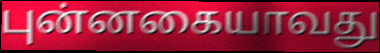
புன்னகையாவது